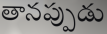
తానప్పుడు